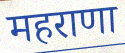
महराणा